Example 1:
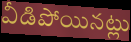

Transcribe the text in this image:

వీడిపోయినట్లు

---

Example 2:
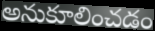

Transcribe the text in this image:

అనుకూలించడం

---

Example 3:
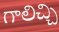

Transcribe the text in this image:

గాలిచ్చి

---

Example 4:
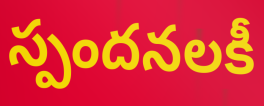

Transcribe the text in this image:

స్పందనలకీ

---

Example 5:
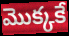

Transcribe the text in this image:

మొక్కకే